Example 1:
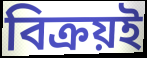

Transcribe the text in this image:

বিক্রয়ই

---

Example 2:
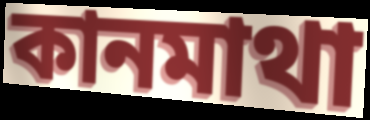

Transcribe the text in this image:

কানমাথা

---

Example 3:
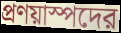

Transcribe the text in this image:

প্রণয়াস্পদের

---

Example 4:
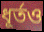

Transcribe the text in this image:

ধূর্তও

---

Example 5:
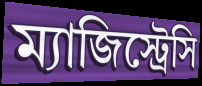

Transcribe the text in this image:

ম্যাজিস্ট্রেসি